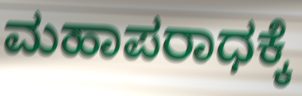
ಮಹಾಪರಾಧಕ್ಕೆ